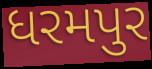
ધરમપુર